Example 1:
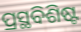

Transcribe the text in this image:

ପ୍ରସ୍ଥବିଶିଷ୍ଟ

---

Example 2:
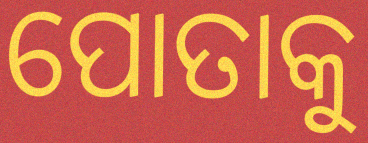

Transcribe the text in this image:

ପୋତାକୁ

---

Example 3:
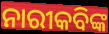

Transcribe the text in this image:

ନାରୀକବିଙ୍କ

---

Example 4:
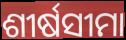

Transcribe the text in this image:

ଶୀର୍ଷସୀମା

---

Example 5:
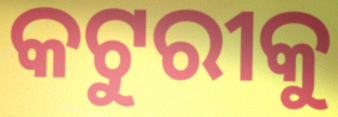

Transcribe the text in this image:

କଟୁରୀକୁ